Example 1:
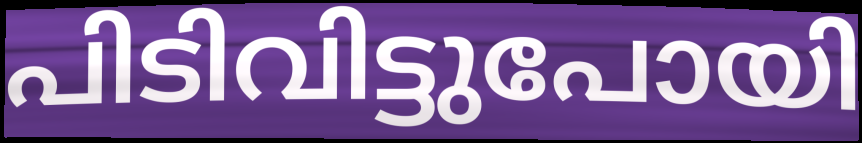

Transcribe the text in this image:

പിടിവിട്ടുപോയി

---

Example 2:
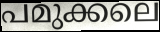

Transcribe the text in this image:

പമുക്കലെ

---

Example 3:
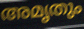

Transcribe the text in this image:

അമൃതും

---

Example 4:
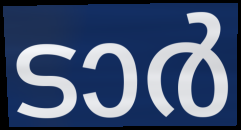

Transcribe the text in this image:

ടാർ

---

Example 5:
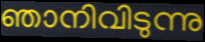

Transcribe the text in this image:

ഞാനിവിടുന്നു